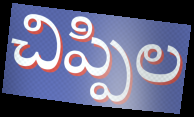
చిప్పిల